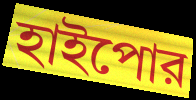
হাইপোর